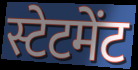
स्टेटमेंट